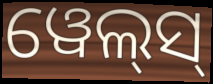
ୱେଲ୍‌ସ୍